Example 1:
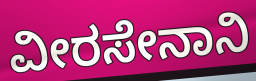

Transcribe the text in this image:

ವೀರಸೇನಾನಿ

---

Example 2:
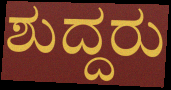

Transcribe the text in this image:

ಶುದ್ದರು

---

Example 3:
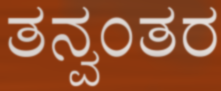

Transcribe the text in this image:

ತನ್ವಂತರ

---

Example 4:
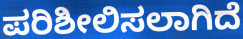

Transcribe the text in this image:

ಪರಿಶೀಲಿಸಲಾಗಿದೆ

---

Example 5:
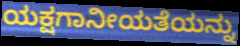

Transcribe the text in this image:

ಯಕ್ಷಗಾನೀಯತೆಯನ್ನು